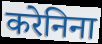
करेनिना